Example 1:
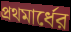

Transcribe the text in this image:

প্রথমার্ধের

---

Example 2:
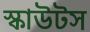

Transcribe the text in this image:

স্কাউটস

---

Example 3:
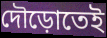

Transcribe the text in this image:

দৌড়োতেই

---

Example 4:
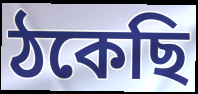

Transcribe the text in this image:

ঠকেছি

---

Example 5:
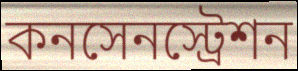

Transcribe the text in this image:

কনসেনস্ট্রেশন